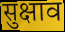
सुक्षाव